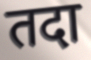
तदा